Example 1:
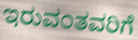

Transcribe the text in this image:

ಇರುವಂತವರಿಗೆ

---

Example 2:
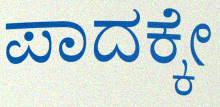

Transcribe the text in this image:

ಪಾದಕ್ಕೇ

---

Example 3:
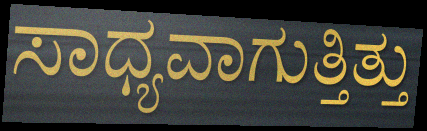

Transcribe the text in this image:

ಸಾಧ್ಯವಾಗುತ್ತಿತ್ತು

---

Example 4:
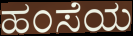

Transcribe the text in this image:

ಹಂಸೆಯ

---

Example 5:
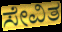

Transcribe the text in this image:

ಸೇವಿತ